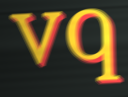
vq